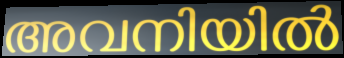
അവനിയിൽ